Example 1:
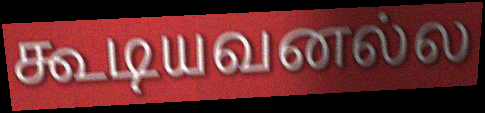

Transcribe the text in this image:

கூடியவனல்ல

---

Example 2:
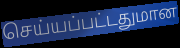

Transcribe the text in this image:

செய்யப்பட்டதுமான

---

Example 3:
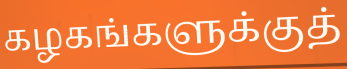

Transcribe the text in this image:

கழகங்களுக்குத்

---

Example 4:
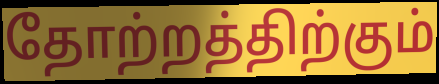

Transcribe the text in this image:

தோற்றத்திற்கும்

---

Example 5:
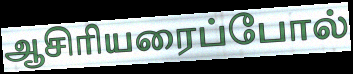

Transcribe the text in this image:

ஆசிரியரைப்போல்